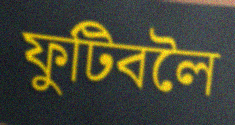
ফুটিবলৈ